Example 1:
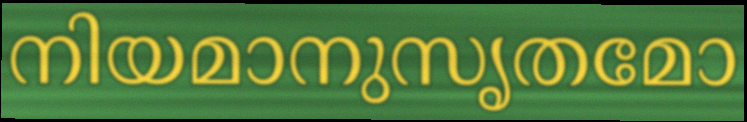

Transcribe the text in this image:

നിയമാനുസൃതമോ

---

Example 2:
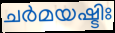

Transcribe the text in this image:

ചർമയഷ്ടിഃ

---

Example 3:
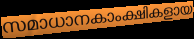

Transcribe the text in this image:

സമാധാനകാംക്ഷികളായ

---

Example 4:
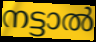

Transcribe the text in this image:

നട്ടാൽ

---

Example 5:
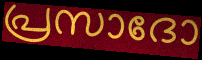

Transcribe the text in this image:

പ്രസാദോ